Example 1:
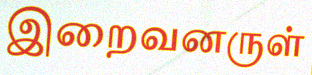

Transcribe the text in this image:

இறைவனருள்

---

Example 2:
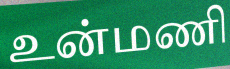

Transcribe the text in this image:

உன்மணி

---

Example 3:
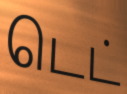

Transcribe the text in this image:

டெட்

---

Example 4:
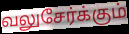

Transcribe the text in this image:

வலுசேர்க்கும்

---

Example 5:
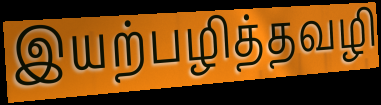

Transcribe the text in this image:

இயற்பழித்தவழி